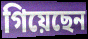
গিয়েছেন